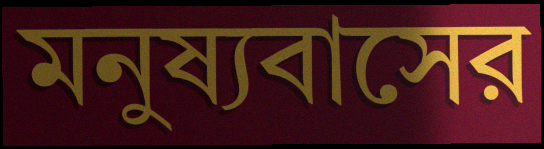
মনুষ্যবাসের